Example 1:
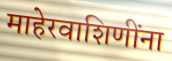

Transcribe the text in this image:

माहेरवाशिणींना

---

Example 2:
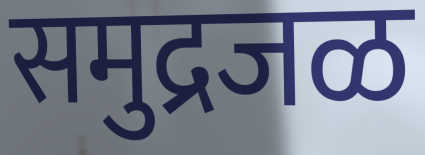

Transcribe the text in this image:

समुद्रजळ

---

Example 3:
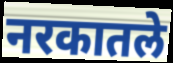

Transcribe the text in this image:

नरकातले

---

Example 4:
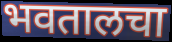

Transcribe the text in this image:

भवतालचा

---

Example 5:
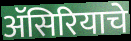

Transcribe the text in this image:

ॲसिरियाचे